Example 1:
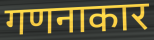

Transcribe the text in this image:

गणनाकार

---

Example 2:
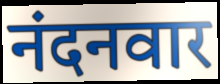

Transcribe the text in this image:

नंदनवार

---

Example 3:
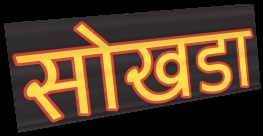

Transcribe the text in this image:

सोखडा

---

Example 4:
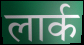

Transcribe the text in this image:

लार्क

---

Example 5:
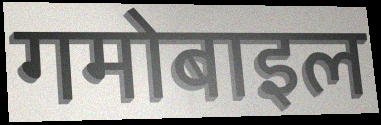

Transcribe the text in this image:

गमोबाइल